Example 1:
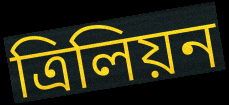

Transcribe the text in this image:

ত্ৰিলিয়ন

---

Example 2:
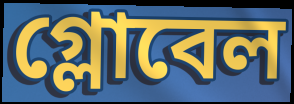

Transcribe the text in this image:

গ্লোবেল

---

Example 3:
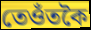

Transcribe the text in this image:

তেওঁতকৈ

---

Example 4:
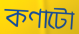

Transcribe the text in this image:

কণাটো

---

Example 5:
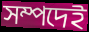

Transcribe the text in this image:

সম্পদেই